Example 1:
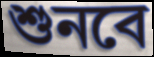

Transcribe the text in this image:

শুনবে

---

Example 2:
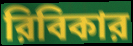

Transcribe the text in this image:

রিবিকার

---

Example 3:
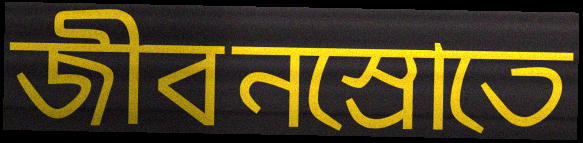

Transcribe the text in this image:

জীবনস্রোতে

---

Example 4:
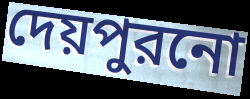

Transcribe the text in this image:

দেয়পুরনো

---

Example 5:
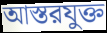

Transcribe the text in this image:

আস্তরযুক্ত